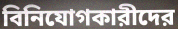
বিনিযোগকারীদের